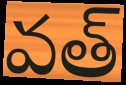
వత్